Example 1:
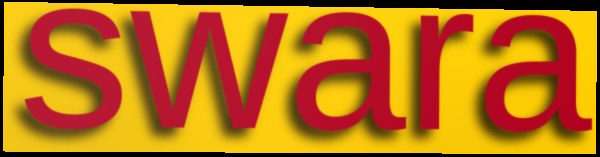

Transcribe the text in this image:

swara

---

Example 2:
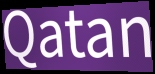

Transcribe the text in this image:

Qatan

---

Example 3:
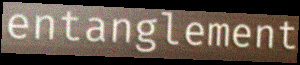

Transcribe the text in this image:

entanglement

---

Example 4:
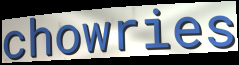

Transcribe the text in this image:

chowries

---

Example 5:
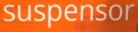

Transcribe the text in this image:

suspensor